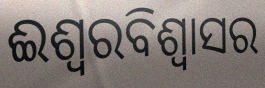
ଈଶ୍ୱରବିଶ୍ୱାସର